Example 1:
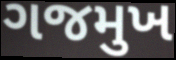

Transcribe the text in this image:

ગજમુખ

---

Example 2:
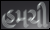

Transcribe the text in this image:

હમચી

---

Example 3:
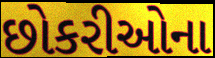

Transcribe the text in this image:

છોકરીઓના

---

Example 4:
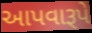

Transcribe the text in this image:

આપવારૂપે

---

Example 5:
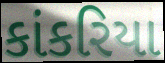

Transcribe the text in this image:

કાંકરિયા